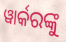
ୱାର୍କରଙ୍କୁ